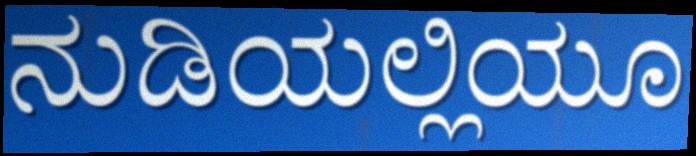
ನುಡಿಯಲ್ಲಿಯೂ